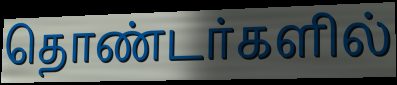
தொண்டர்களில்